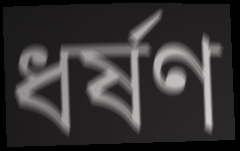
ধর্ষণ